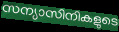
സന്യാസിനികളുടെ